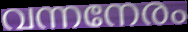
വന്നനേരം